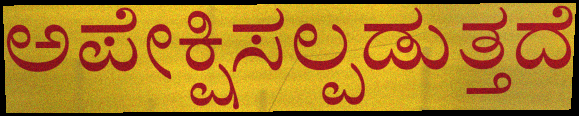
ಅಪೇಕ್ಷಿಸಲ್ಪಡುತ್ತದೆ